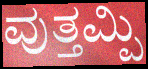
ವುತ್ತಮ್ಪಿ